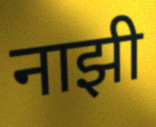
नाझी